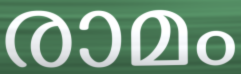
രാമം